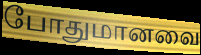
போதுமானவை